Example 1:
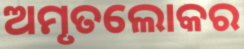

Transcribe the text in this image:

ଅମୃତଲୋକର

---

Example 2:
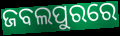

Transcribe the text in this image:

ଜବଲପୁରରେ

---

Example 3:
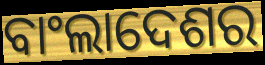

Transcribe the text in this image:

ବାଂଲାଦେଶର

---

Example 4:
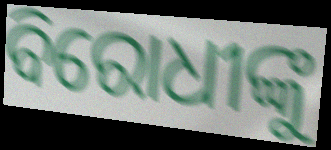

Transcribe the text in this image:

ବିରୋଧୀଙ୍କୁ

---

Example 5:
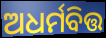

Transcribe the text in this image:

ଅଧର୍ମବିତ୍ତ